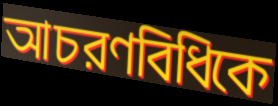
আচরণবিধিকে